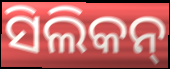
ସିଲିକନ୍